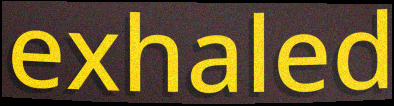
exhaled